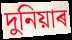
দুনিয়াৰ